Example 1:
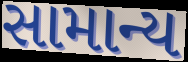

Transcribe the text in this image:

સામાન્ય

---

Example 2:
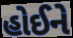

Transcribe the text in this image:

હોઈને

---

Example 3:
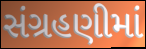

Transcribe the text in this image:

સંગ્રહણીમાં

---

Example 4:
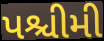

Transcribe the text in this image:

પશ્ચીમી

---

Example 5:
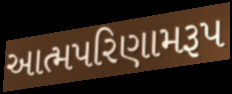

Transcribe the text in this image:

આત્મપરિણામરૂપ